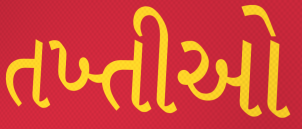
તખ્તીઓ